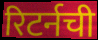
रिटर्नची